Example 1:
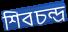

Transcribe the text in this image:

শিবচন্দ্র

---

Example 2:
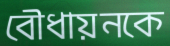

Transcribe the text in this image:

বৌধায়নকে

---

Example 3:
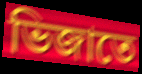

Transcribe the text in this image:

ভিজাতে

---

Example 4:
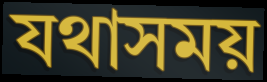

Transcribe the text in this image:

যথাসময়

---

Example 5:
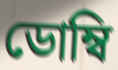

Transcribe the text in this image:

ডোম্বি